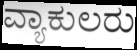
ವ್ಯಾಕುಲರು